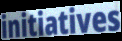
initiatives